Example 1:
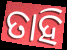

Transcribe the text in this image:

ତାହି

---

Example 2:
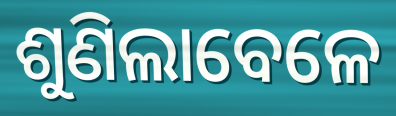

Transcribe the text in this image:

ଶୁଣିଲାବେଳେ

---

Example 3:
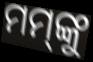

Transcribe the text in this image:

ମମ୍‌ଙ୍କୁ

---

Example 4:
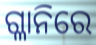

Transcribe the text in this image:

ଗ୍ଳାନିରେ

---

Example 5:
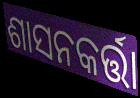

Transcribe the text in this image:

ଶାସନକର୍ତ୍ତା